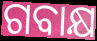
ଗବାକ୍ଷ